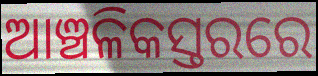
ଆଞ୍ଚଳିକସ୍ତରରେ